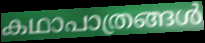
കഥാപാത്രങ്ങൾ